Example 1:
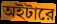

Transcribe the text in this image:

অইটারে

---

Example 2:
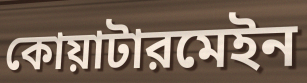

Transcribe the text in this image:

কোয়াটারমেইন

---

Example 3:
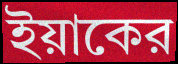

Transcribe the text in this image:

ইয়াকের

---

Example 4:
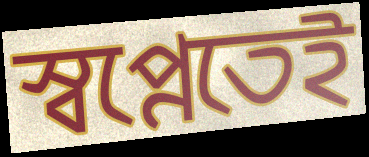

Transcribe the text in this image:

স্বপ্নেতেই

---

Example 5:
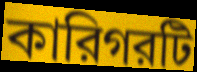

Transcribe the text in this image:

কারিগরটি